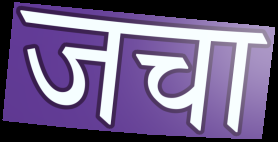
जचा